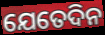
ଯେତେଦିନ